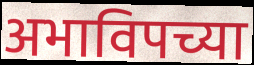
अभाविपच्या